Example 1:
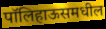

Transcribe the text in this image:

पॉलिहाऊसमधील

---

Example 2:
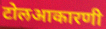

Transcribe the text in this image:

टोलआकारणी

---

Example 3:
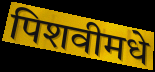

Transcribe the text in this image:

पिशवीमधे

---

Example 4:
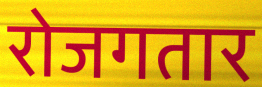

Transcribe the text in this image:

रोजगतार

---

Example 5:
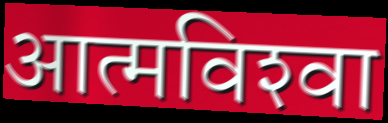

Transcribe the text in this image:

आत्मविश्वा